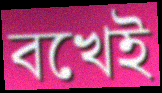
বখেই